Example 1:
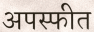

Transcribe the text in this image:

अपस्फीत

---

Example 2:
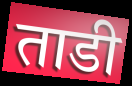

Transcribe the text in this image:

ताडी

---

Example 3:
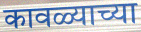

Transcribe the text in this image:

कावळ्याच्या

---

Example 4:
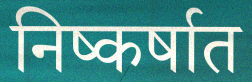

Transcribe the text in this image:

निष्कर्षात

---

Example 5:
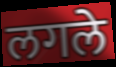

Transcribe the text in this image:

लगले